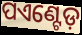
ପଏଣ୍ଟେଡ଼